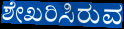
ಶೇಖರಿಸಿರುವ